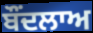
ਬੌਂਦਲਾਅ